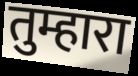
तुम्हारा